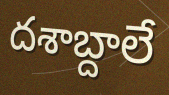
దశాబ్దాలే